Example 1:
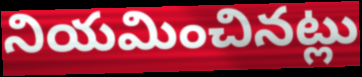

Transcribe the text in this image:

నియమించినట్లు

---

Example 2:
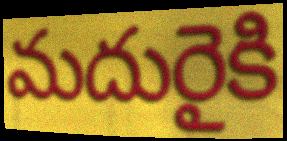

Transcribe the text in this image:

మదురైకి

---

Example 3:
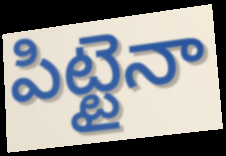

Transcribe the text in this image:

పిట్టైనా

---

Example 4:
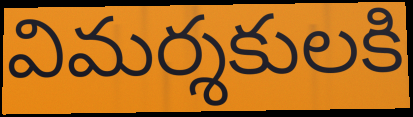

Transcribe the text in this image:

విమర్శకులకి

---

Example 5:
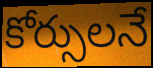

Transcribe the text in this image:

కోర్సులనే